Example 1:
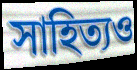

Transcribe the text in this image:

সাহিত্যও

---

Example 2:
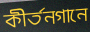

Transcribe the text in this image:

কীর্তনগানে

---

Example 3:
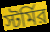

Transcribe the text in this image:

স্টর্মির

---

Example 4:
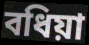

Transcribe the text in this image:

বধিয়া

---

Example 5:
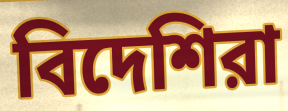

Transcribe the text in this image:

বিদেশিরা